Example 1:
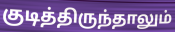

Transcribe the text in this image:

குடித்திருந்தாலும்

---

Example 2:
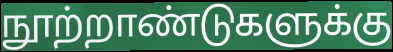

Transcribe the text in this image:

நூற்றாண்டுகளுக்கு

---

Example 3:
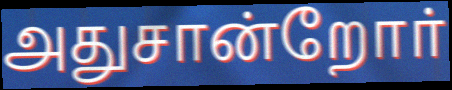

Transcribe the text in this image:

அதுசான்றோர்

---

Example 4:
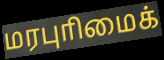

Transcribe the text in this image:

மரபுரிமைக்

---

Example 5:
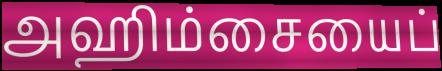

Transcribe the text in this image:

அஹிம்சையைப்